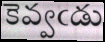
కెవ్వఁడు